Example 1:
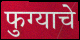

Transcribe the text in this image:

फुग्याचे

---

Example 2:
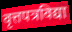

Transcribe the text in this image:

वृत्तपत्रविद्या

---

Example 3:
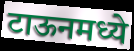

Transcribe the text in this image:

टाऊनमध्ये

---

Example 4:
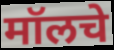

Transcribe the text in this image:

मॉलचे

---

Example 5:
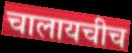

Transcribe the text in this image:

चालायचीच